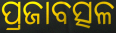
ପ୍ରଜାବତ୍ସଳ